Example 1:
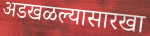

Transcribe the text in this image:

अडखळल्यासारखा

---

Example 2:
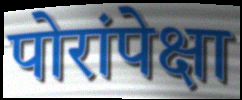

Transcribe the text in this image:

पोरांपेक्षा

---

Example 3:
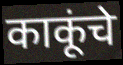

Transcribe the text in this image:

काकूंचे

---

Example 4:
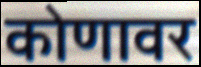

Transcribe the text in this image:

कोणावर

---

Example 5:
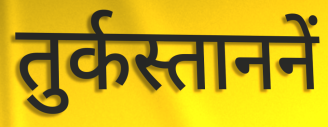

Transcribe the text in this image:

तुर्कस्ताननें